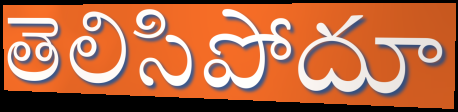
తెలిసిపోదూ